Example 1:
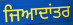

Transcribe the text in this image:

ਜਿਆਦਾਂਤਰ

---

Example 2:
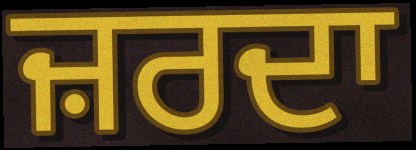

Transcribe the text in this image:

ਜ਼ਰਦਾ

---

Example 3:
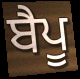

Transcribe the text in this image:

ਬੈਪੂ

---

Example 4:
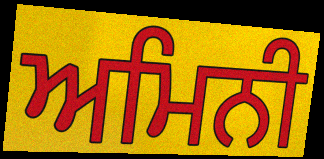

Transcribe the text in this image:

ਅਮਿਨੀ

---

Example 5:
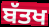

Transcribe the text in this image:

ਬੱਤਖ